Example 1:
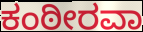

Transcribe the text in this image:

ಕಂಠೀರವಾ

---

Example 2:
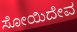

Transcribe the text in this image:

ಸೋಯಿದೇವ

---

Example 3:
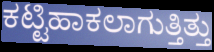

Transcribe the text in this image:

ಕಟ್ಟಿಹಾಕಲಾಗುತ್ತಿತ್ತು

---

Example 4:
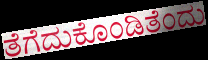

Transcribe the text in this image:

ತೆಗೆದುಕೊಂಡಿತೆಂದು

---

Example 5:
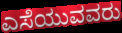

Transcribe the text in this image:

ಎಸೆಯುವವರು